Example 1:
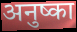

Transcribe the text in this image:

अनुष्का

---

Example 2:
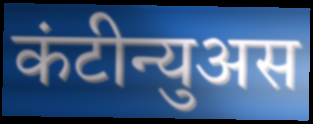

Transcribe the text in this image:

कंटीन्युअस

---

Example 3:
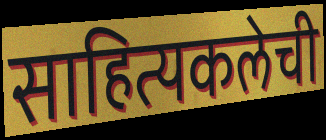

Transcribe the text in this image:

साहित्यकलेची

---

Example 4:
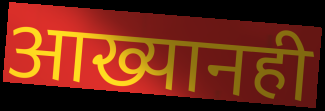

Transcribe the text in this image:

आख्यानही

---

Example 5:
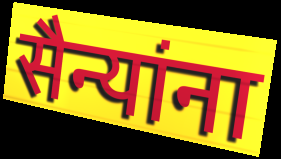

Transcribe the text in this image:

सैन्यांना